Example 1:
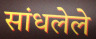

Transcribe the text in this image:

सांधलेले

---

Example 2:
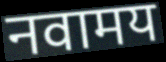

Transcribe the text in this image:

नवामय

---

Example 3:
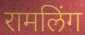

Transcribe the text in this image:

रामलिंग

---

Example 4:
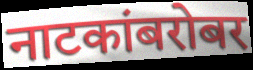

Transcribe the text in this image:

नाटकांबरोबर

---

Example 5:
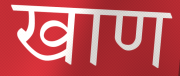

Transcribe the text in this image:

खाण